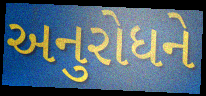
અનુરોધને